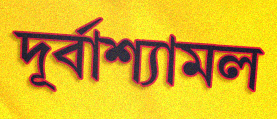
দূর্বাশ্যামল